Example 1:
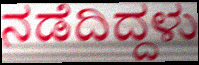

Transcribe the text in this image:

ನಡೆದಿದ್ದಳು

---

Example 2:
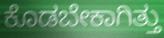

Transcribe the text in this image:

ಕೊಡಬೇಕಾಗಿತ್ತು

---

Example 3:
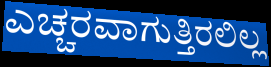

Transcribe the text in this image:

ಎಚ್ಚರವಾಗುತ್ತಿರಲಿಲ್ಲ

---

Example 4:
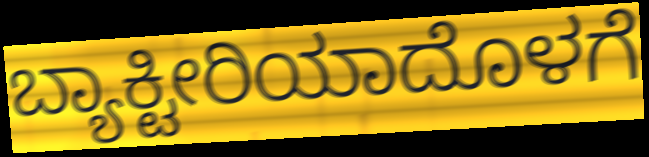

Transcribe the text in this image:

ಬ್ಯಾಕ್ಟೀರಿಯಾದೊಳಗೆ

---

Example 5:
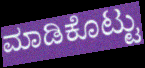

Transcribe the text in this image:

ಮಾಡಿಕೊಟ್ಟು